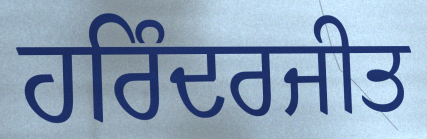
ਹਰਿੰਦਰਜੀਤ